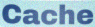
Cache